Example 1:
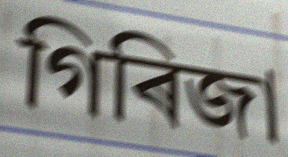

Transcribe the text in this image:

গিৰিজা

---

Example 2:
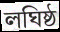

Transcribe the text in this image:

লঘিষ্ঠ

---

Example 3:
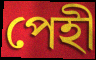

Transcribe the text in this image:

পেহী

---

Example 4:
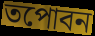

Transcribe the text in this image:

তপোবন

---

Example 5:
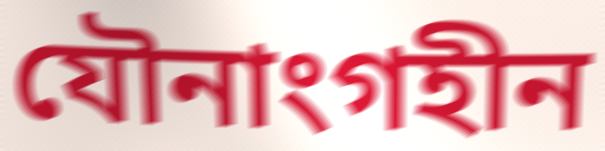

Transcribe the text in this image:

যৌনাংগহীন